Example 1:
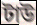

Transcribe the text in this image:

টাউ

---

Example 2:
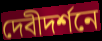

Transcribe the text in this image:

দেবীদর্শনে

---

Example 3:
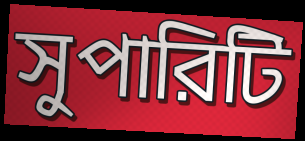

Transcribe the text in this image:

সুপারিটি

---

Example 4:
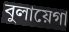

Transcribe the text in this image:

বুলায়েগা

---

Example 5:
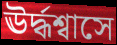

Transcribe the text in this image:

ঊর্দ্ধশ্বাসে